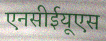
एनसीईयूएस